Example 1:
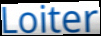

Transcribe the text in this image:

Loiter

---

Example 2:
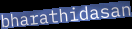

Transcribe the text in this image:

bharathidasan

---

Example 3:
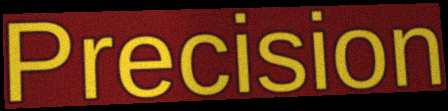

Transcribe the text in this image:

Precision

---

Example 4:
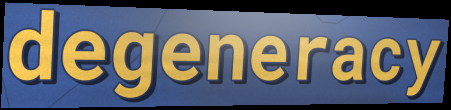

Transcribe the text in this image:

degeneracy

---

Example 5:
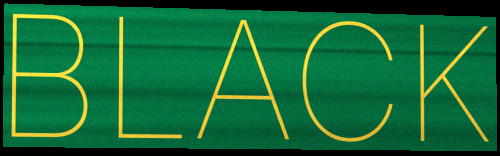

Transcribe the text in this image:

BLACK